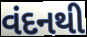
વંદનથી